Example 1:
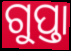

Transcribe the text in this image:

ଗୁପ୍ତା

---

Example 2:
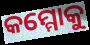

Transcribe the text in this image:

କମ୍ମୋକୁ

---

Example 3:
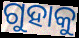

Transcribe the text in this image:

ଗୁହାକୁ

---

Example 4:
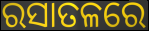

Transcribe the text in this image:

ରସାତଳରେ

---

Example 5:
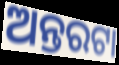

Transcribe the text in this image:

ଅନ୍ତରଟା